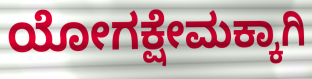
ಯೋಗಕ್ಷೇಮಕ್ಕಾಗಿ